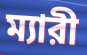
ম্যারী